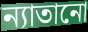
ন্যাতানো